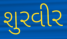
શુરવીર